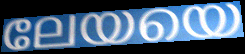
ലേയയെ